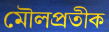
মৌলপ্রতীক